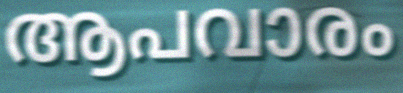
ആപവാരം